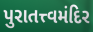
પુરાતત્ત્વમંદિર